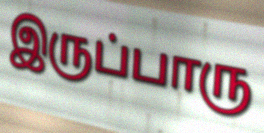
இருப்பாரு